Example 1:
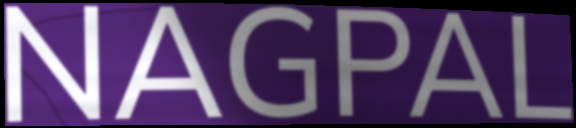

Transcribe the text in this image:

NAGPAL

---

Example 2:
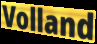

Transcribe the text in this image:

Volland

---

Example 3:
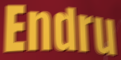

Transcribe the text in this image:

Endru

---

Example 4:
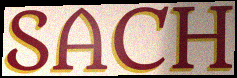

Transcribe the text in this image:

SACH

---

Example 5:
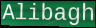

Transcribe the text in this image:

Alibagh